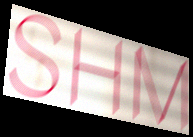
SHM